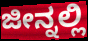
ಜೀನ್ನಲ್ಲಿ